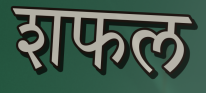
शफल